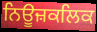
ਨਿਊਜ਼ਕਲਿਕ